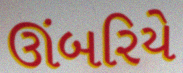
ઊંબરિયે